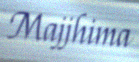
Majjhima